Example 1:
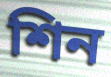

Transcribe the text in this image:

শিন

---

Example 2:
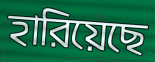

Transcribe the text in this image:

হারিয়েছে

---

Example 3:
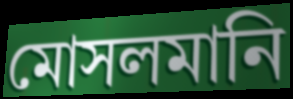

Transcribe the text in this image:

মোসলমানি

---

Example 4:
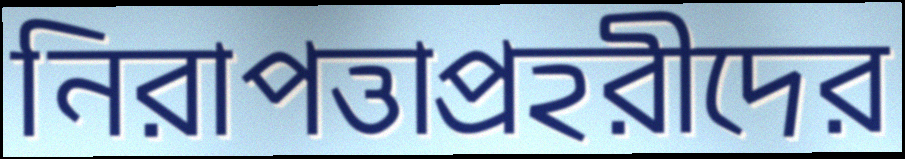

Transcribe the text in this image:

নিরাপত্তাপ্রহরীদের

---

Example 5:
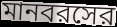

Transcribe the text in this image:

মানবরসের